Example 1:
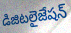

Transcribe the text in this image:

డిజిటలైజేషన్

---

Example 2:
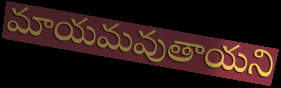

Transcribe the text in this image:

మాయమవుతాయని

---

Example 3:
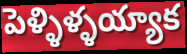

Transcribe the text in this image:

పెళ్ళిళ్ళయ్యాక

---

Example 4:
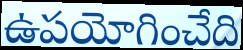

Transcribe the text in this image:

ఉపయోగించేది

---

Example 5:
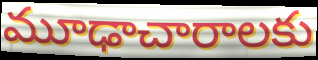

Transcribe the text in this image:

మూఢాచారాలకు